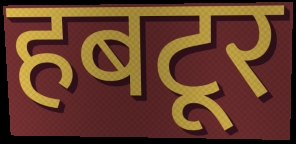
हबटूर